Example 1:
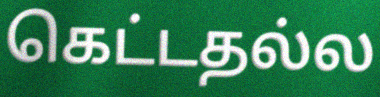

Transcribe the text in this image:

கெட்டதல்ல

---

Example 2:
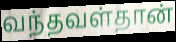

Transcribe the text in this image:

வந்தவள்தான்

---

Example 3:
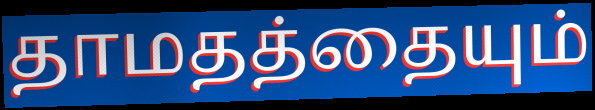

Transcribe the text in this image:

தாமதத்தையும்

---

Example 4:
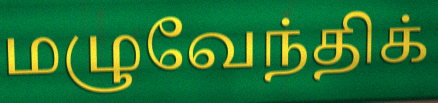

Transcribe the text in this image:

மழுவேந்திக்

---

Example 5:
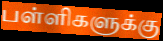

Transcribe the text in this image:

பள்ளிகளுக்கு